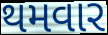
થમવાર